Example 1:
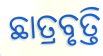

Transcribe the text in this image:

ଛାତ୍ରବୃତ୍ତି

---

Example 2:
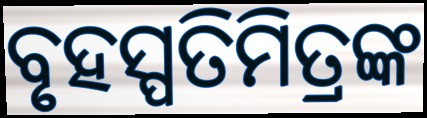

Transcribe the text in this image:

ବୃହସ୍ପତିମିତ୍ରଙ୍କ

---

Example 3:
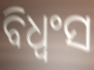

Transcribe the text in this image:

ବିଧ୍ଵଂସ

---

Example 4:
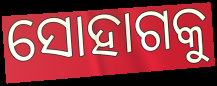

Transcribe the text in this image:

ସୋହାଗକୁ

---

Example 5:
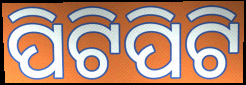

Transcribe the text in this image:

ପିଟିପିଟି